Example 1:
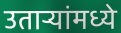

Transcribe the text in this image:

उतार्‍यांमध्ये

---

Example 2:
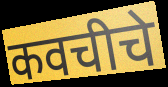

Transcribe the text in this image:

कवचीचे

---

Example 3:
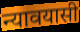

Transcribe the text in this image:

न्यावयासी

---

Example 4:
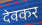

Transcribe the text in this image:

देवकर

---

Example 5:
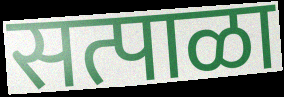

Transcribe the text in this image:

सत्पाळा